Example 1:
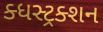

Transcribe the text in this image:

ક્ધસ્ટ્રક્શન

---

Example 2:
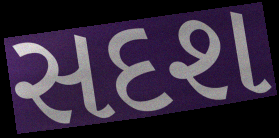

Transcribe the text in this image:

સદશ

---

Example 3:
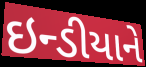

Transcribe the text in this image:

ઇન્ડીયાને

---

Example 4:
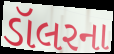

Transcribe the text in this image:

ડૉલરના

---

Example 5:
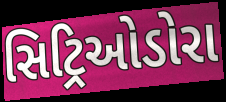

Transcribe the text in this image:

સિટ્રિઓડોરા